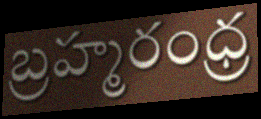
బ్రహ్మరంధ్ర